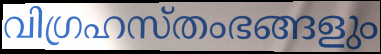
വിഗ്രഹസ്തംഭങ്ങളും